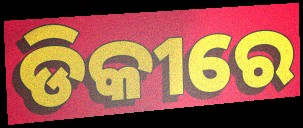
ଡିକୀରେ